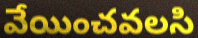
వేయించవలసి